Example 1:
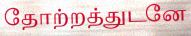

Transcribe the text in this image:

தோற்றத்துடனே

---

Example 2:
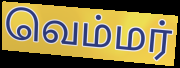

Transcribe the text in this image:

வெம்மர்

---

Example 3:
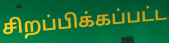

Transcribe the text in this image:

சிறப்பிக்கப்பட்ட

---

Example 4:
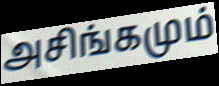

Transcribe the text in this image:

அசிங்கமும்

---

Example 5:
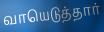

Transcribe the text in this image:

வாயெடுத்தார்